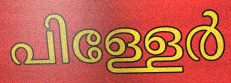
പിള്ളേർ